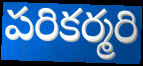
పరికర్మరి